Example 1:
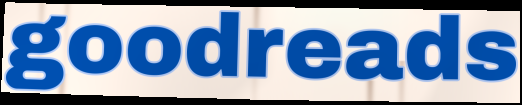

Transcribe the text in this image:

goodreads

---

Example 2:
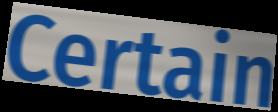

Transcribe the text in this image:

Certain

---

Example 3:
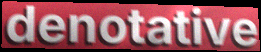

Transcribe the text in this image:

denotative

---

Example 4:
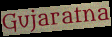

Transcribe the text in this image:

Gujaratna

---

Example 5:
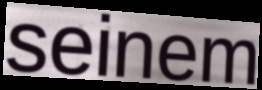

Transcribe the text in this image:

seinem